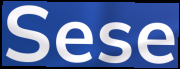
Sese